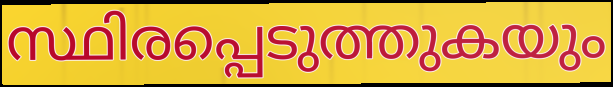
സ്ഥിരപ്പെടുത്തുകയും